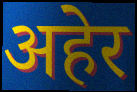
अहेर